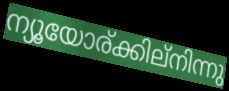
ന്യൂയോര്ക്കില്നിന്നു